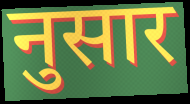
नुसार